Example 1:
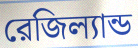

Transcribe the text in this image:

রেজিল্যান্ড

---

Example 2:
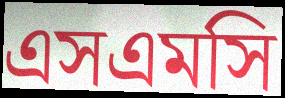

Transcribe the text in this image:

এসএমসি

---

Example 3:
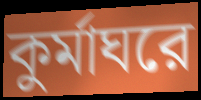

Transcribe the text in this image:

কুর্মাঘরে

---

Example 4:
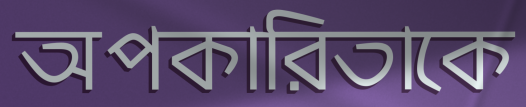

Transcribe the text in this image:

অপকারিতাকে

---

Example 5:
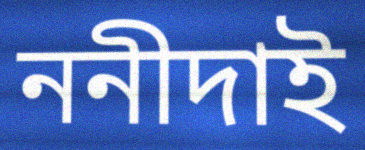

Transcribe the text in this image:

ননীদাই